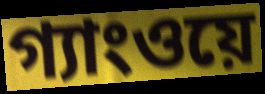
গ্যাংওয়ে